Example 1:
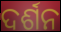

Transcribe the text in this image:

ଦର୍ଶନ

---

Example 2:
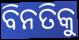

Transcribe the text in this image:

ବିନତିକୁ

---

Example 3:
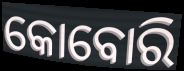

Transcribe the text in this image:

କୋବୋରି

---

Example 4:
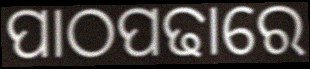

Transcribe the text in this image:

ପାଠପଢାରେ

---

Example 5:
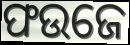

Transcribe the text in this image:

ଫଉଜେ